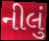
નીલું